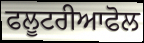
ਫਲੂਟਰੀਆਫੋਲ